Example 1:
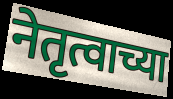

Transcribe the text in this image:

नेतृत्वाच्या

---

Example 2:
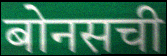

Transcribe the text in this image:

बोनसची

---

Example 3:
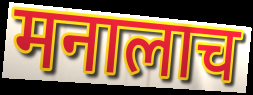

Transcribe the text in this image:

मनालाच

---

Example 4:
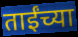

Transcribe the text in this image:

ताईंच्या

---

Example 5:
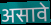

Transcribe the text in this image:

असावे